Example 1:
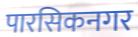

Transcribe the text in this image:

पारसिकनगर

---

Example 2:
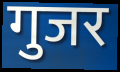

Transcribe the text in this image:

गुजर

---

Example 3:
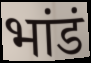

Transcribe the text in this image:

भांडं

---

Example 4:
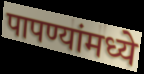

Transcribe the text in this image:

पापण्यांमध्ये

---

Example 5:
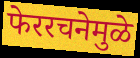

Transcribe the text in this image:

फेररचनेमुळे